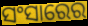
ସଂସାରେର